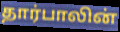
தார்பாலின்